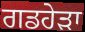
ਗਡਹੇੜਾ